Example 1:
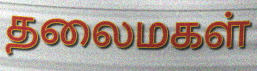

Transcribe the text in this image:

தலைமகள்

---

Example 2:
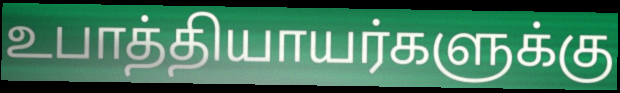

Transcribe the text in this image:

உபாத்தியாயர்களுக்கு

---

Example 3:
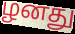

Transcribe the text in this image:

ழனது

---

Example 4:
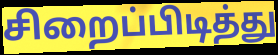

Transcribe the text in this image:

சிறைப்பிடித்து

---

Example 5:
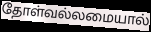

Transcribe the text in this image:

தோள்வல்லமையால்